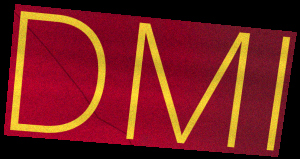
DMI